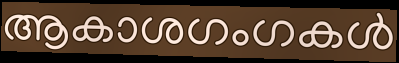
ആകാശഗംഗകൾ